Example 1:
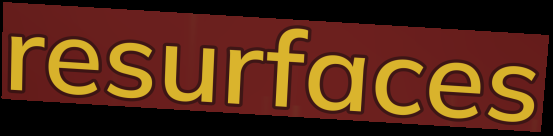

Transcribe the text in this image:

resurfaces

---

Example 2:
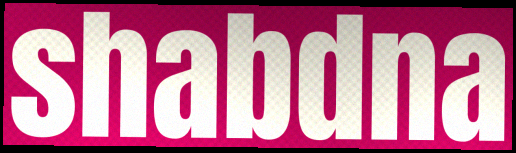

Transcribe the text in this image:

shabdna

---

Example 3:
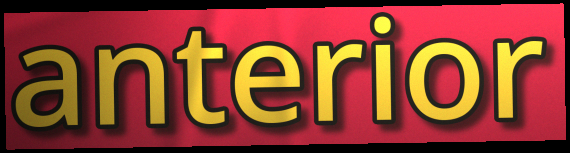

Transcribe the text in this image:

anterior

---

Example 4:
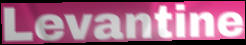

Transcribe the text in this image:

Levantine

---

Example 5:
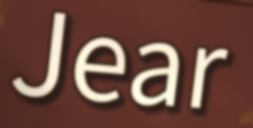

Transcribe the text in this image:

Jear